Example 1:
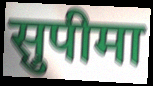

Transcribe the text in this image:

सुपीमा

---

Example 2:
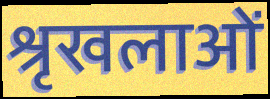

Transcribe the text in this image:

श्रृखलाओं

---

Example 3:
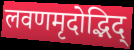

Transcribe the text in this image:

लवणमृदोद्भिद्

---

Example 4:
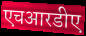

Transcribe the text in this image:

एचआरडीए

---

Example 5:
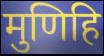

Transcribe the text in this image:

मुणिहि